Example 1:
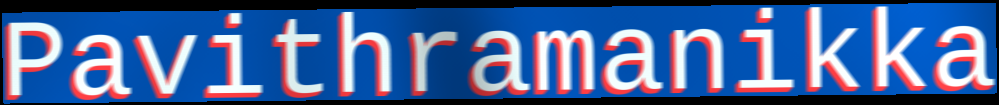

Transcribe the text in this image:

Pavithramanikka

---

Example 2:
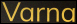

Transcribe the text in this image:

Varna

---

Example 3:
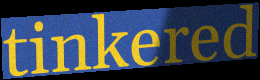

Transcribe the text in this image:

tinkered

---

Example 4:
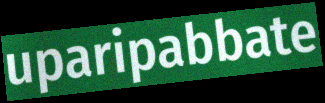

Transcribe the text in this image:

uparipabbate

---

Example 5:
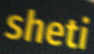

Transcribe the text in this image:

sheti